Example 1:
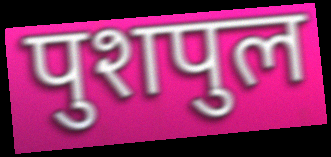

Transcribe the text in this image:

पुशपुल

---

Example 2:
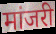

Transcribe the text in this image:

मांजरी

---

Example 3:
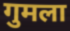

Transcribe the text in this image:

गुमला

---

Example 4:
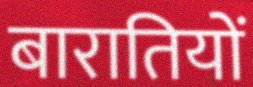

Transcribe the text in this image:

बारातियों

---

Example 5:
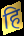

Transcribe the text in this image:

हि